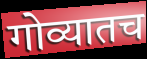
गोव्यातच